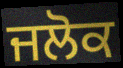
ਜਲੋਕ